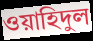
ওয়াহিদুল